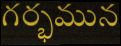
గర్భమున